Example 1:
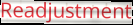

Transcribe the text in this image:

Readjustment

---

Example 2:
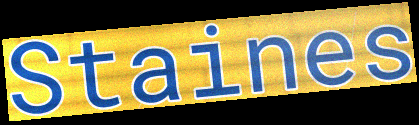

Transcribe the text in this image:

Staines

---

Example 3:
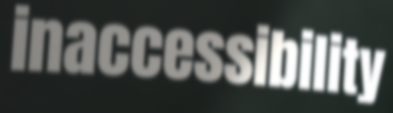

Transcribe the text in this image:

inaccessibility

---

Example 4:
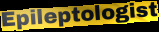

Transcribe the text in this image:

Epileptologist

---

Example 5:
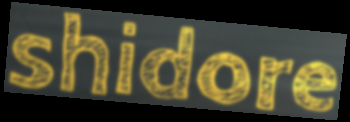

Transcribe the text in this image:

shidore